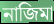
নাজিমা